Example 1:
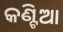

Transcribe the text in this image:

କଣ୍ଟିଆ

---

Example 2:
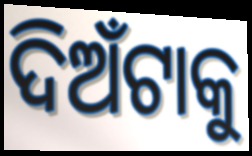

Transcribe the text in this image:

ଦିଅଁଟାକୁ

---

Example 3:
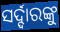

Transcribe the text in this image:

ସର୍ଦ୍ଦାରଙ୍କୁ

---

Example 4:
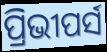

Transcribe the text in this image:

ପ୍ରିଭୀପର୍ସ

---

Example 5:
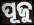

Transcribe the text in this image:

ପୂଜୁ